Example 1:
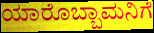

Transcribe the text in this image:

ಯಾರೊಬ್ಬಾಮನಿಗೆ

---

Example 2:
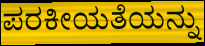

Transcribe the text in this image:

ಪರಕೀಯತೆಯನ್ನು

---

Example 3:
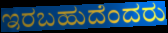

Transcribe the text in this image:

ಇರಬಹುದೆಂದರು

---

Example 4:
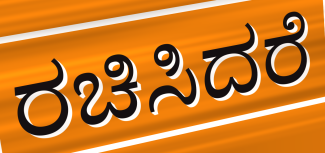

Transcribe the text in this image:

ರಚಿಸಿದರೆ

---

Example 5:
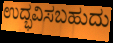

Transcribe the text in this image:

ಉದ್ಭವಿಸಬಹುದು